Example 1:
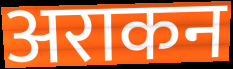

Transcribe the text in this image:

अराकन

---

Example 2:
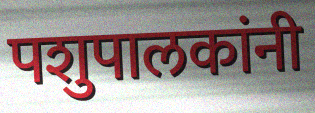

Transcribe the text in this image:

पशुपालकांनी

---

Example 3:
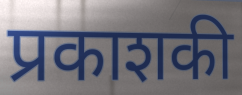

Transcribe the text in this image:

प्रकाशकी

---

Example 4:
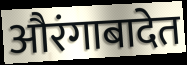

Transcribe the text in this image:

औरंगाबादेत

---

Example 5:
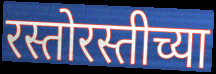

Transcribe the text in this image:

रस्तोरस्तीच्या